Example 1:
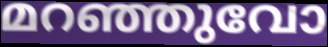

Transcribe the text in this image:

മറഞ്ഞുവോ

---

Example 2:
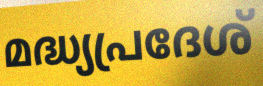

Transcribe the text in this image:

മദ്ധ്യപ്രദേശ്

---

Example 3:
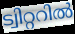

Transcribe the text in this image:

ട്വിറ്ററിൽ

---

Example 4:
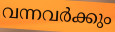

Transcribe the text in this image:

വന്നവർക്കും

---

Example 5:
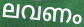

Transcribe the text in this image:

ലവണം